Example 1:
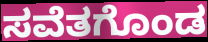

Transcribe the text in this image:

ಸವೆತಗೊಂಡ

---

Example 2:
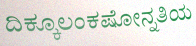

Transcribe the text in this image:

ದಿಕ್ಕೂಲಂಕಷೋನ್ನತಿಯ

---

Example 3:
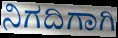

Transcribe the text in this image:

ನಿಗದಿಗಾಗಿ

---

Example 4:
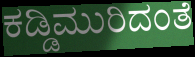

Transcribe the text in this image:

ಕಡ್ಡಿಮುರಿದಂತೆ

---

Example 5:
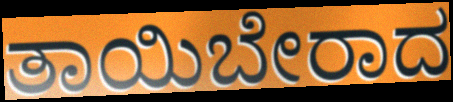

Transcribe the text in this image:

ತಾಯಿಬೇರಾದ